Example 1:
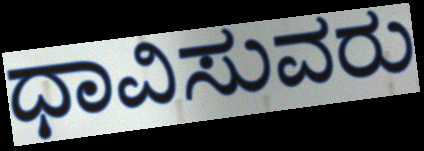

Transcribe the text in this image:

ಧಾವಿಸುವರು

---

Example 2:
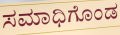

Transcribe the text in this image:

ಸಮಾಧಿಗೊಂಡ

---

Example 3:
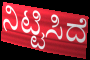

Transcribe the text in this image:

ನಿಟ್ಟಿಸಿದೆ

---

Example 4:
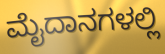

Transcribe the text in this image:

ಮೈದಾನಗಳಲ್ಲಿ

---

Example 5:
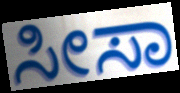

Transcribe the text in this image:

ಸೀಸಾ